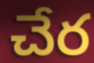
చేర